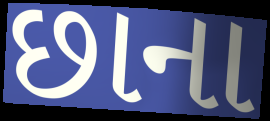
છાના